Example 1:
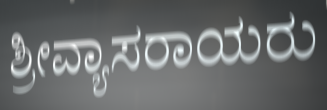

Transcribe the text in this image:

ಶ್ರೀವ್ಯಾಸರಾಯರು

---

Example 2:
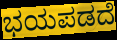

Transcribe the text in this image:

ಭಯಪಡದೆ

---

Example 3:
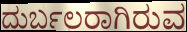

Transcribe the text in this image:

ದುರ್ಬಲರಾಗಿರುವ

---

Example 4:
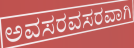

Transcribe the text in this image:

ಅವಸರವಸರವಾಗಿ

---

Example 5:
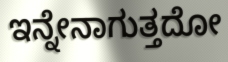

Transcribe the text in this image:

ಇನ್ನೇನಾಗುತ್ತದೋ